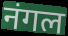
नंगल